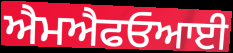
ਐਮਐਫਓਆਈ